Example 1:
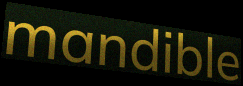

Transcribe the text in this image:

mandible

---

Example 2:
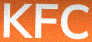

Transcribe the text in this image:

KFC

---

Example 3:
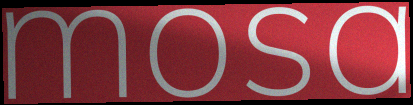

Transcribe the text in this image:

mosa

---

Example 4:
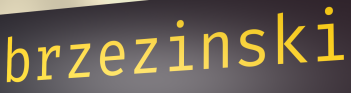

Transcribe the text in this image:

brzezinski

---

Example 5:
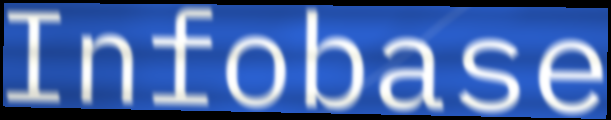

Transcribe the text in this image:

Infobase